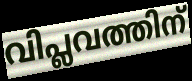
വിപ്ലവത്തിന്